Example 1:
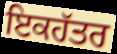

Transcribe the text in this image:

ਇਕਹੱਤਰ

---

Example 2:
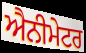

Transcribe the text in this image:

ਐਨੀਮੇਟਰ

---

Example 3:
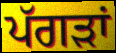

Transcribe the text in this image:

ਪੱਗੜਾਂ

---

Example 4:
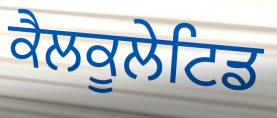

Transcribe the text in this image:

ਕੈਲਕੂਲੇਟਿਡ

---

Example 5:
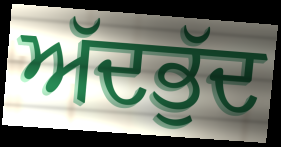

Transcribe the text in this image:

ਅੱਦਭੁੱਦ